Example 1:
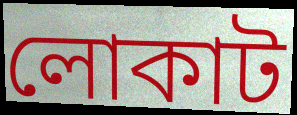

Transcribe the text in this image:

লোকাট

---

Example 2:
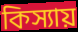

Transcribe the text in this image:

কিস্যায়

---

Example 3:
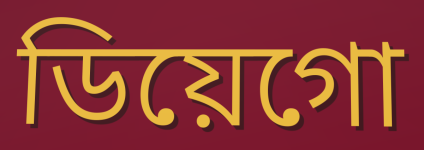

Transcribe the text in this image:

ডিয়েগো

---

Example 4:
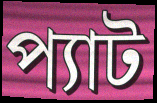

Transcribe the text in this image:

প্যাট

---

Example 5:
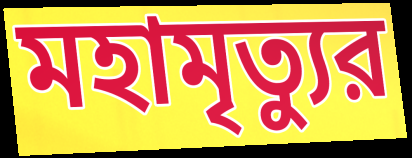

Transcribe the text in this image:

মহামৃত্যুর